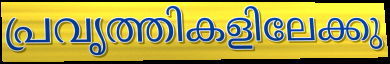
പ്രവൃത്തികളിലേക്കു